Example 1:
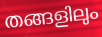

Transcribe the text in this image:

തങ്ങളിലും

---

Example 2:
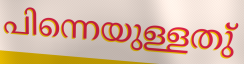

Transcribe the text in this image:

പിന്നെയുള്ളതു്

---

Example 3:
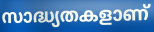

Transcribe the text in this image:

സാദ്ധ്യതകളാണ്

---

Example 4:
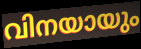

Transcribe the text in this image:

വിനയായും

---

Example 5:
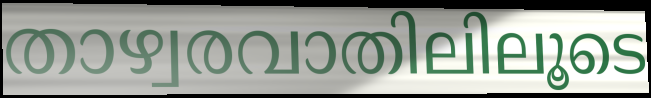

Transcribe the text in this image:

താഴ്വരവാതിലിലൂടെ